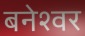
बनेश्वर